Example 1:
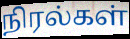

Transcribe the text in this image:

நிரல்கள்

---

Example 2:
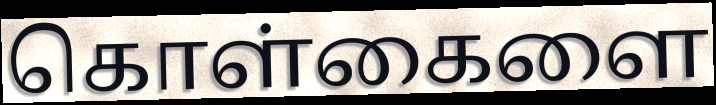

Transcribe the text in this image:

கொள்கைளை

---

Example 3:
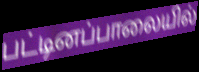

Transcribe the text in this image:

பட்டினப்பாலையில்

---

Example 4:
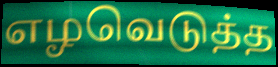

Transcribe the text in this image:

எழவெடுத்த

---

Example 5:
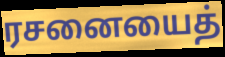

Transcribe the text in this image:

ரசனையைத்